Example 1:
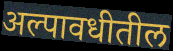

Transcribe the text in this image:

अल्पावधीतील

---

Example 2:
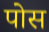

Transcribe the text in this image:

पोस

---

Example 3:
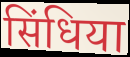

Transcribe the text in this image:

सिंधिया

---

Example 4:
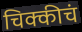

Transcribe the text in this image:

चिक्कीचं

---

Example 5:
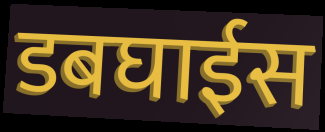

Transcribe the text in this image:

डबघाईस